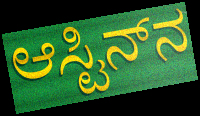
ಆಸ್ಟಿನ್‌ನ